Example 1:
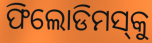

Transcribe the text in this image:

ଫିଲୋଡିମସ୍‌କୁ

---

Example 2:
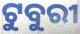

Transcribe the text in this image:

ଟୁବୁରୀ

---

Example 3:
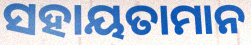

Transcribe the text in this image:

ସହାୟତାମାନ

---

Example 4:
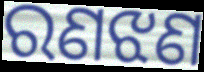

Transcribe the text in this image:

ରଣଝଣ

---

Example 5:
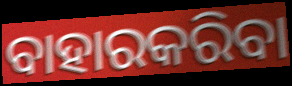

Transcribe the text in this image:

ବାହାରକରିବା